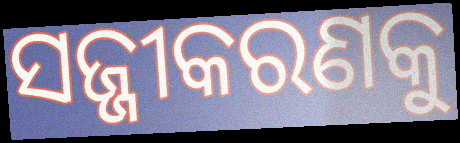
ସଜ୍ଜୀକରଣକୁ